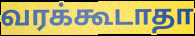
வரக்கூடாதா